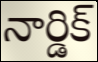
నార్డిక్